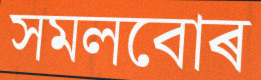
সমলবোৰ